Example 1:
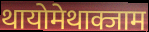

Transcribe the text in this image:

थायोमेथाक्जाम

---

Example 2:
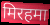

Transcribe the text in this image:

मिरहमा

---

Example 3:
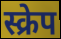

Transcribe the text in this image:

स्क्रेप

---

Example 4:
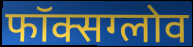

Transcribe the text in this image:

फॉक्सग्लोव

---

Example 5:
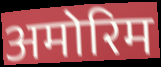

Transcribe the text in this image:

अमोरिम